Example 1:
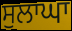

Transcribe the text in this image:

ਸੁਲਾਘਾ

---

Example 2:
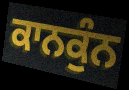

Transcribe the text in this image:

ਕਾਨਕੁੰਨ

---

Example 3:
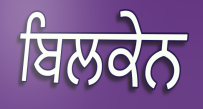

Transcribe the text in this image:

ਬਿਲਕੇਨ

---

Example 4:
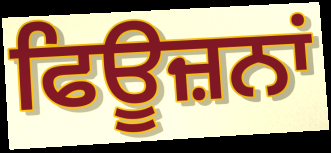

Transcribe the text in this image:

ਫਿਊਜ਼ਨਾਂ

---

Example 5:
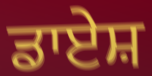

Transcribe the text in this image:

ਡਾਏਸ਼